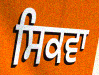
ਸਿਕਵਾ